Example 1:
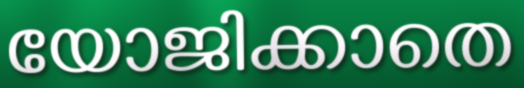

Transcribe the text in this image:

യോജിക്കാതെ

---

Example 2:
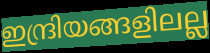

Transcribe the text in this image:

ഇന്ദ്രിയങ്ങളിലല്ല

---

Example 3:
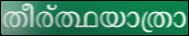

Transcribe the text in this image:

തീര്ത്ഥയാത്രാ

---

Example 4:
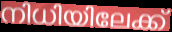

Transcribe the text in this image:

നിധിയിലേക്ക്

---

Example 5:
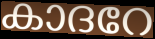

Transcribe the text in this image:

കാദറേ